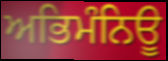
ਅਭਿਮੰਨਿਊ